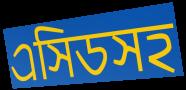
এসিডসহ